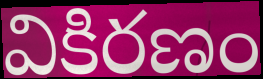
వికిరణం